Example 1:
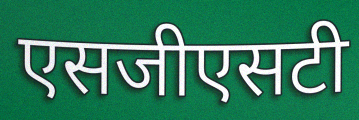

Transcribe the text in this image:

एसजीएसटी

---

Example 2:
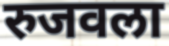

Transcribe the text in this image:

रुजवला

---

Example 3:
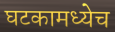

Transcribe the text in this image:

घटकामध्येच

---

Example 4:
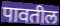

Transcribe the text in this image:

पावतील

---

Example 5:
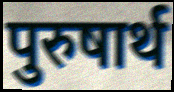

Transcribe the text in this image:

पुरुषार्थ